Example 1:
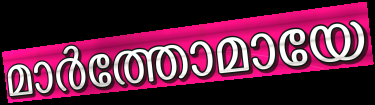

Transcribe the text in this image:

മാർത്തോമായേ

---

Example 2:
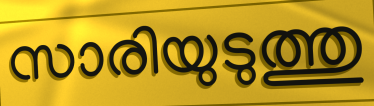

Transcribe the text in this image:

സാരിയുടുത്തു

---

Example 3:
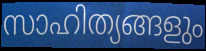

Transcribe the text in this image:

സാഹിത്യങ്ങളും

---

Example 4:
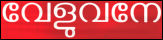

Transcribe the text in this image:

വേളുവനേ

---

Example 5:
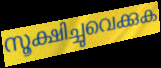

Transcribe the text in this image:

സൂക്ഷിച്ചുവെക്കുക